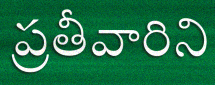
ప్రతీవారిని